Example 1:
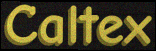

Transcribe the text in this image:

Caltex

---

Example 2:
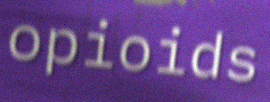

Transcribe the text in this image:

opioids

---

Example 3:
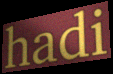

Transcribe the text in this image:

hadi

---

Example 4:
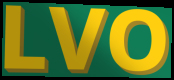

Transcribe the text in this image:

LVO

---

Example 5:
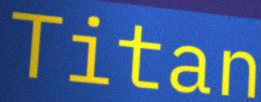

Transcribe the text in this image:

Titan